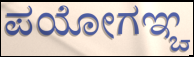
ಪಯೋಗಞ್ಚ